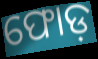
ଫୋଡ଼